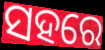
ସହରେ